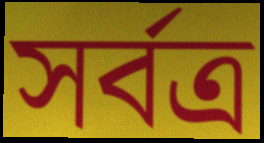
সর্বত্র